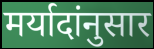
मर्यादांनुसार